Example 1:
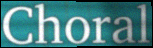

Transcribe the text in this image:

Choral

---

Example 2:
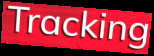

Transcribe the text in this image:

Tracking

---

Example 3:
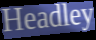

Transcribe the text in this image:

Headley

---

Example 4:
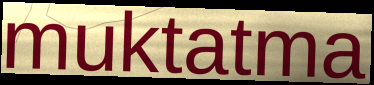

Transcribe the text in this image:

muktatma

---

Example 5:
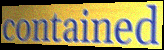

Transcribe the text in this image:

contained